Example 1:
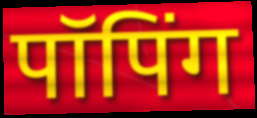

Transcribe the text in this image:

पॉपिंग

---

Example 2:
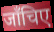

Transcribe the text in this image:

जाँचिए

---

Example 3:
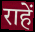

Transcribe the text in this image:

राहें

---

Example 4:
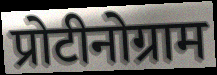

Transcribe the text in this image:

प्रोटीनोग्राम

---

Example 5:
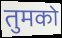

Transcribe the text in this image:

तुमको